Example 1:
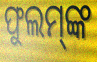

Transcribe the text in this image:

ଫୁଲମ୍‌ଙ୍କ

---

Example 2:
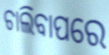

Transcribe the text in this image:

ଚାଲିବାପରେ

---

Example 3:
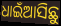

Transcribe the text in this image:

ଧାଇଁଆସିଛୁ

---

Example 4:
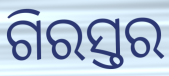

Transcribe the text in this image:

ଗିରସ୍ତର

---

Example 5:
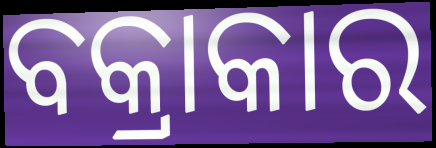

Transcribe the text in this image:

ବକ୍ରାକାର